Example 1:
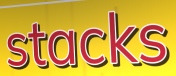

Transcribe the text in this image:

stacks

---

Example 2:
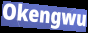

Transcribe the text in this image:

Okengwu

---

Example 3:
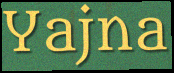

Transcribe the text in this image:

Yajna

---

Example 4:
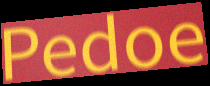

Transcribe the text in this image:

Pedoe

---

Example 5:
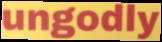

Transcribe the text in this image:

ungodly